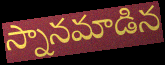
స్నానమాడిన